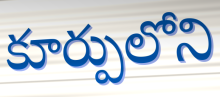
కూర్పులోని